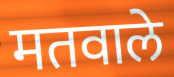
मतवाले